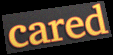
cared